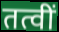
तत्वीं